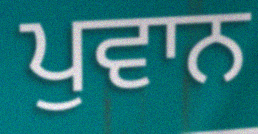
ਪੁਵਾਨ